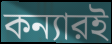
কন্যারই